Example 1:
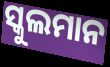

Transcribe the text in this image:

ସ୍କୁଲମାନ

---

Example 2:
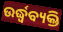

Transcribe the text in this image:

ଉର୍ଦ୍ଧ୍ୱବ୍ୟକ୍ତି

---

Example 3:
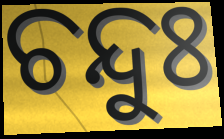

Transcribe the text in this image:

ଚନ୍ଦୁଃ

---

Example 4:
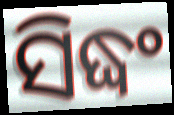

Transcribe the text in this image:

ସିଦ୍ଧଂ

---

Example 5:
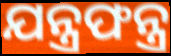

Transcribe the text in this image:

ଯନ୍ତ୍ରଫନ୍ତ୍ର